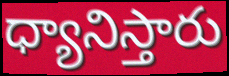
ధ్యానిస్తారు